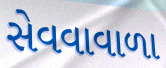
સેવવાવાળા